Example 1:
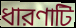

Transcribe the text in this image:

ধারণাটি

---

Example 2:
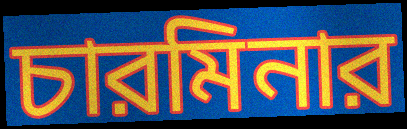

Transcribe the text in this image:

চারমিনার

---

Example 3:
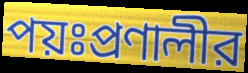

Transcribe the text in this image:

পয়ঃপ্রণালীর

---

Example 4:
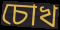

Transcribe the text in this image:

চোখ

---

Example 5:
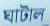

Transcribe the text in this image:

ঘাটাল